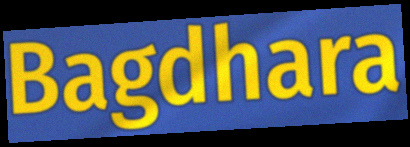
Bagdhara